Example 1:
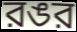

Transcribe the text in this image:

রঙর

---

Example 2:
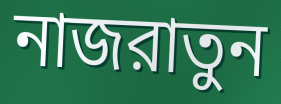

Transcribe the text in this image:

নাজরাতুন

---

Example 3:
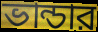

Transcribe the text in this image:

ভান্ডার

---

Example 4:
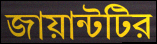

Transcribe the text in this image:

জায়ান্টটির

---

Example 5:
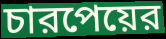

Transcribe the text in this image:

চারপেয়ের